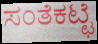
ಸಂತೆಕಟ್ಟೆ